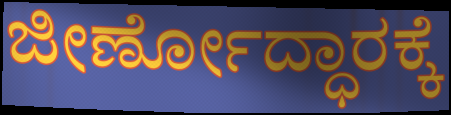
ಜೀರ್ಣೋದ್ಧಾರಕ್ಕೆ